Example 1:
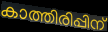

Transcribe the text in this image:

കാത്തിരിപ്പിന്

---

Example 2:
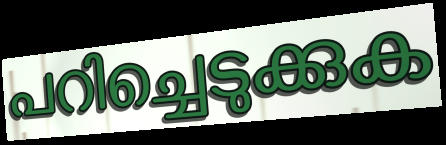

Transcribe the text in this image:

പറിച്ചെടുക്കുക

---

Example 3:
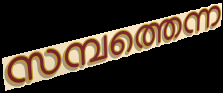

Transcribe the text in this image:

സമ്പത്തെന്ന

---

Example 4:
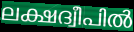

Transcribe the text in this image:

ലക്ഷദ്വീപിൽ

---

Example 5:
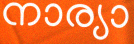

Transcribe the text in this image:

നാര്യാ